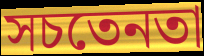
সচতেনতা